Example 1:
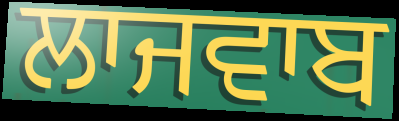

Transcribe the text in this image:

ਲਾਜਵਾਬ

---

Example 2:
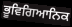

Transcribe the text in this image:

ਭੂਵਿਗਿਆਨਿਕ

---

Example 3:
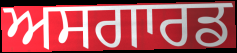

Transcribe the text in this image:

ਅਸਗਾਰਡ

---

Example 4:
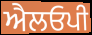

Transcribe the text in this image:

ਐਲਓਪੀ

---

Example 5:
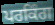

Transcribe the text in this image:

ਪਰਕਿੰਗ